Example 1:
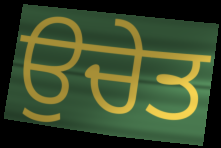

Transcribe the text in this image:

ਉਚੇਤ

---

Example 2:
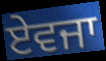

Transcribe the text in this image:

ਏਵਜਾ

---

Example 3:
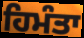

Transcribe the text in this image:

ਹਿਮੰਤਾ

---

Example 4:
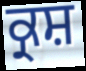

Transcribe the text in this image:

ਕ੍ਰਸ਼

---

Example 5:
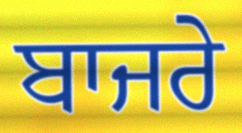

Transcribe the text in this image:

ਬਾਜਰੇ